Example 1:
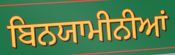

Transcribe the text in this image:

ਬਿਨਯਾਮੀਨੀਆਂ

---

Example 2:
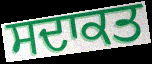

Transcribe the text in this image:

ਸਦਾਕਤ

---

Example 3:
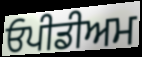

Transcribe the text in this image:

ਓਪੀਡੀਅਮ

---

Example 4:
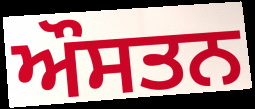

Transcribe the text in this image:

ਔਸਤਨ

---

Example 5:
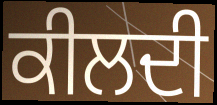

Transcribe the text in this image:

ਕੀਲਦੀ